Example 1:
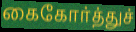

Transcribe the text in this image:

கைகோர்த்துச்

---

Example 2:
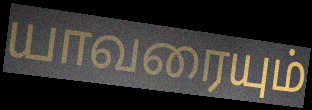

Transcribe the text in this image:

யாவரையும்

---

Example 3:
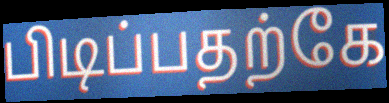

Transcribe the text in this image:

பிடிப்பதற்கே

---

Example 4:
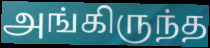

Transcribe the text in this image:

அங்கிருந்த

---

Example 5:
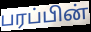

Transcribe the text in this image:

பரப்பின்